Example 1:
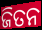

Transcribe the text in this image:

ଜିତନ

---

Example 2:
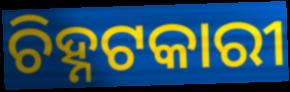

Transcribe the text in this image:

ଚିହ୍ନଟକାରୀ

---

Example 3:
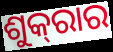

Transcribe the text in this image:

ଶୁକ୍‌ରାର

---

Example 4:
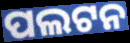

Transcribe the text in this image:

ପଲଟନ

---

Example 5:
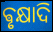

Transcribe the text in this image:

ଵୃକ୍ଷାଦି